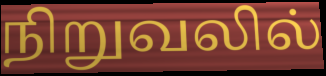
நிறுவலில்